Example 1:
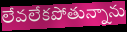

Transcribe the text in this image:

లేవలేకపోతున్నాను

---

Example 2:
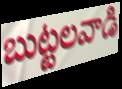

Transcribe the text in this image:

బుట్టలవాడి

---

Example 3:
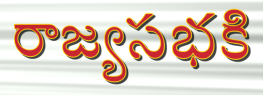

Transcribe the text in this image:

రాజ్యసభకి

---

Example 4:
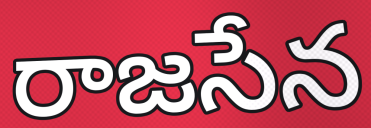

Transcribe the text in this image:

రాజసేన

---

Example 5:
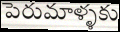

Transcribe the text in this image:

పెరుమాళ్ళకు